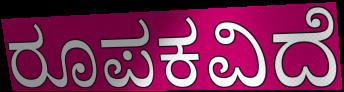
ರೂಪಕವಿದೆ